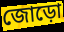
জোড়ো